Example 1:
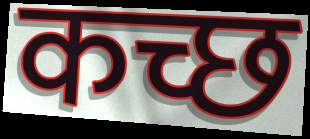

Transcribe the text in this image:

कच्छ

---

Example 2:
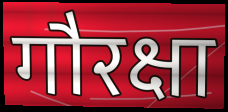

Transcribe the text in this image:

गौरक्षा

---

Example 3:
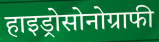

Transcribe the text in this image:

हाइड्रोसोनोग्राफी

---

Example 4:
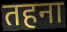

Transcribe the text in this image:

तहना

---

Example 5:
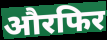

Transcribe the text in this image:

औरफिर